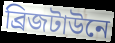
ব্রিজটাউনে